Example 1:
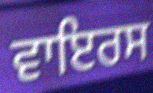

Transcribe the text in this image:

ਵਾਇਰਸ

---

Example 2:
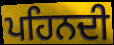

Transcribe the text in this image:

ਪਹਿਨਦੀ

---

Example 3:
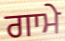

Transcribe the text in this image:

ਗਾਮੇ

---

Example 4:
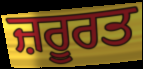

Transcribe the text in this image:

ਜ਼ਰੂਰਤ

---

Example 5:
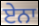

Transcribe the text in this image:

ਏਨਾ